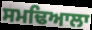
ਸਮਢਿਆਲਾ